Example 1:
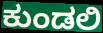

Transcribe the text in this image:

ಕುಂಡಲಿ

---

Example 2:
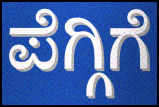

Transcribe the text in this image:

ಪೆಗ್ಗಿಗೆ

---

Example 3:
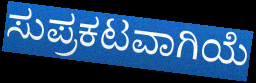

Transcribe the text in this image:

ಸುಪ್ರಕಟವಾಗಿಯೆ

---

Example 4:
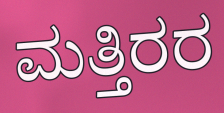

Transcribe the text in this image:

ಮತ್ತಿರರ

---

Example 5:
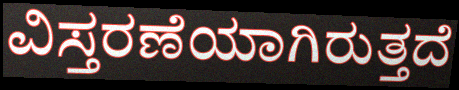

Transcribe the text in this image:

ವಿಸ್ತರಣೆಯಾಗಿರುತ್ತದೆ